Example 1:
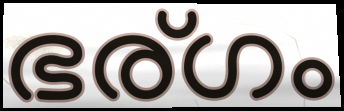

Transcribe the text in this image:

ഭര്ഗം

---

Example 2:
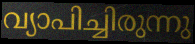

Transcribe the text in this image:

വ്യാപിച്ചിരുന്നു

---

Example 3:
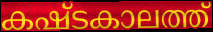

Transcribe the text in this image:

കഷ്ടകാലത്ത്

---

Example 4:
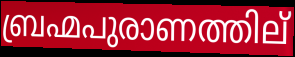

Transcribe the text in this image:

ബ്രഹ്മപുരാണത്തില്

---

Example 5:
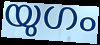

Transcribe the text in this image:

യുഗം